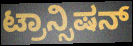
ಟ್ರಾನ್ಸಿಷನ್